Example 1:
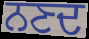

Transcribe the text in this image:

ਨਣਦ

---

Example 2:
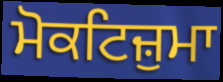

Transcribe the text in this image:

ਮੋਕਟਿਜ਼ੁਮਾ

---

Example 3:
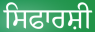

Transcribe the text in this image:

ਸਿਫਾਰਸ਼ੀ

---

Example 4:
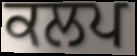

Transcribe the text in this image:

ਕਲਪ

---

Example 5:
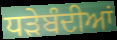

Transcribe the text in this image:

ਧੜੇਬੰਦੀਆਂ